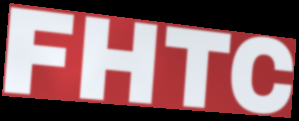
FHTC